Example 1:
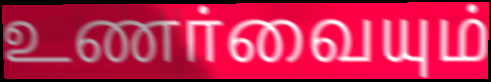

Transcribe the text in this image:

உணர்வையும்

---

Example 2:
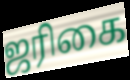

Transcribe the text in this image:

ஜரிகை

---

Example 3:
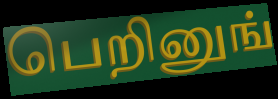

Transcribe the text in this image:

பெறினுங்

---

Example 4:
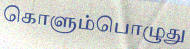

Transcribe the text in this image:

கொளும்பொழுது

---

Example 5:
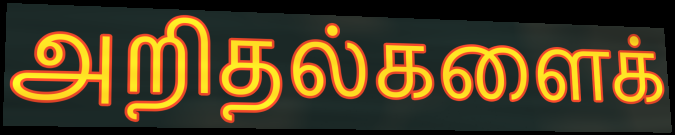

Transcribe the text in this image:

அறிதல்களைக்